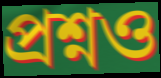
প্ৰশ্নও